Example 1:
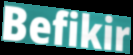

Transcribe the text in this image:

Befikir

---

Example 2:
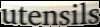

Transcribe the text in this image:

utensils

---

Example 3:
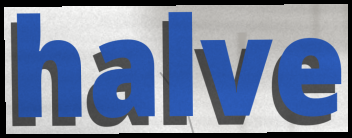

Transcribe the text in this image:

halve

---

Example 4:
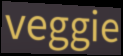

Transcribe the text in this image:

veggie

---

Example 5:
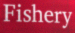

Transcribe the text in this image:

Fishery